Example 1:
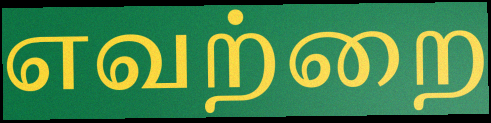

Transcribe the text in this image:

எவற்றை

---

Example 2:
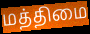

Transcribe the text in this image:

மத்திமை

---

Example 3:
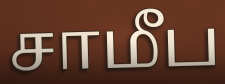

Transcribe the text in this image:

சாமீப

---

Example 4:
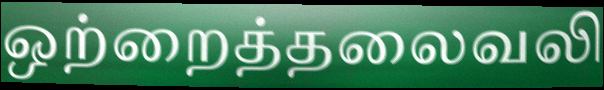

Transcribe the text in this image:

ஒற்றைத்தலைவலி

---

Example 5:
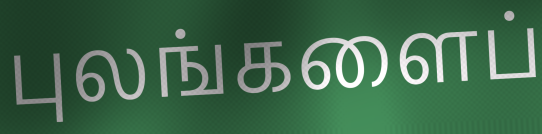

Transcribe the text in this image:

புலங்களைப்